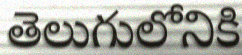
తెలుగులోనికి